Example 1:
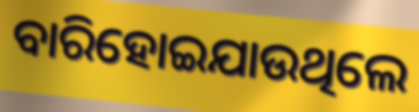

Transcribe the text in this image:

ବାରିହୋଇଯାଉଥିଲେ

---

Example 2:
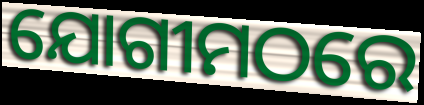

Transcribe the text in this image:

ଯୋଗୀମଠରେ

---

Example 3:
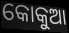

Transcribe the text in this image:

କୋକୁଆ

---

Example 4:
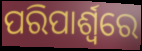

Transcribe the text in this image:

ପରିପାର୍ଶ୍ୱରେ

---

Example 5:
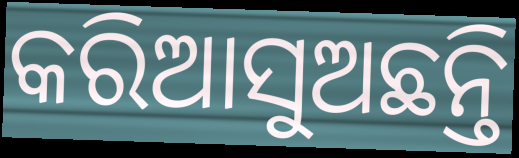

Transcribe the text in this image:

କରିଆସୁଅଛନ୍ତି